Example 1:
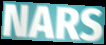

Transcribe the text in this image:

NARS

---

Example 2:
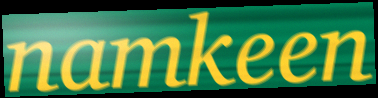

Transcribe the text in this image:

namkeen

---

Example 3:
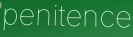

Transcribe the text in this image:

penitence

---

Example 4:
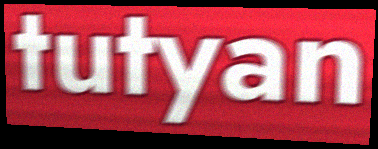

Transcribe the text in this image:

tutyan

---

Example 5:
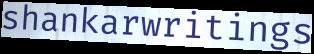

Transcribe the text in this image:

shankarwritings